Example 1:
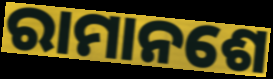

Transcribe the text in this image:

ରାମାନଶେ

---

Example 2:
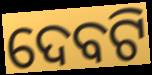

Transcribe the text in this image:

ଦେବଟି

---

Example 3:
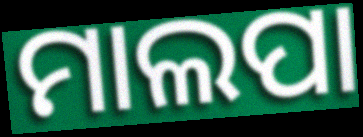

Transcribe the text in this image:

ମାଲପା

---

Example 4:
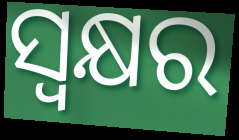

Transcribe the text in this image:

ସ୍ୱକ୍ଷର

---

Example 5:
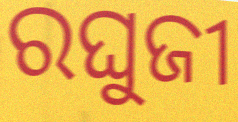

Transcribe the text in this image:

ରଘୁଜୀ